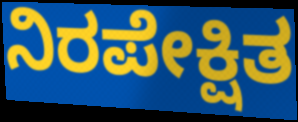
ನಿರಪೇಕ್ಷಿತ